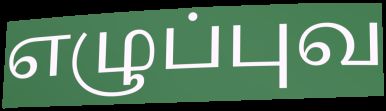
எழுப்புவ